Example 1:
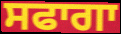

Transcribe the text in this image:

ਸਫਾਗਾ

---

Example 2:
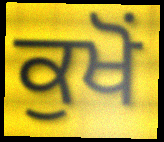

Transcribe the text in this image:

ਕੁਖੋਂ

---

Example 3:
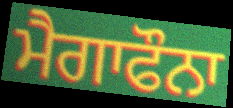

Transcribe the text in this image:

ਮੈਗਾਫੌਨਾ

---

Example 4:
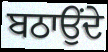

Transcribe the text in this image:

ਬਠਾਉਂਦੇ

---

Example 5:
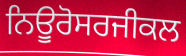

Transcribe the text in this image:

ਨਿਊਰੋਸਰਜੀਕਲ